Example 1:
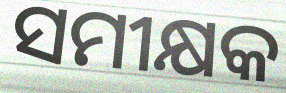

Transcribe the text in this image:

ସମୀକ୍ଷକ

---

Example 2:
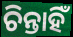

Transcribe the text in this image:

ଚିନ୍ତାହିଁ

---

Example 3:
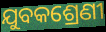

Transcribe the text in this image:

ଯୁବକଶ୍ରେଣୀ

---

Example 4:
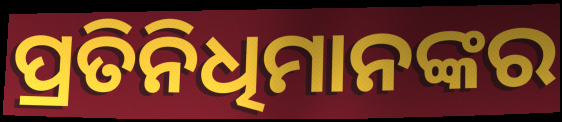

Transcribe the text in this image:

ପ୍ରତିନିଧିମାନଙ୍କର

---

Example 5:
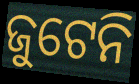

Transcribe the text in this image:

ଜୁଟେନି